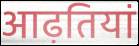
आढ़तियां